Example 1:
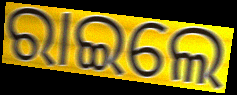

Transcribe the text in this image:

ରାଇଲେ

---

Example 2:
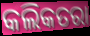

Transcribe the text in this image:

କଲିକତରା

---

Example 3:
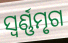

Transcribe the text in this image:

ସ୍ଵର୍ଣ୍ଣମୃଗ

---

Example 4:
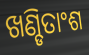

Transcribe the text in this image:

ଖଣ୍ଡିତାଂଶ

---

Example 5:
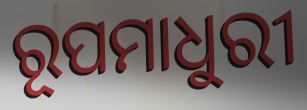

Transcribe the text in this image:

ରୂପମାଧୁରୀ